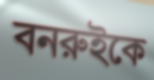
বনরুইকে